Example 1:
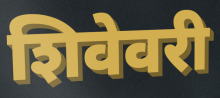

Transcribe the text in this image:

शिवेवरी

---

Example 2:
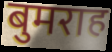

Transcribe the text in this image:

बुमराह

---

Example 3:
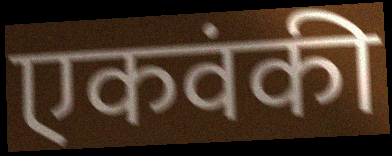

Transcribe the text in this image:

एकवंकी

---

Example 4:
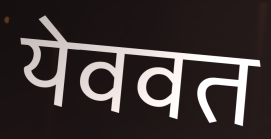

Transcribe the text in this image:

येववत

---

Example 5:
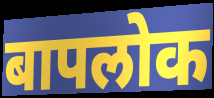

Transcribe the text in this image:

बापलोक